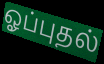
ஓப்புதல்